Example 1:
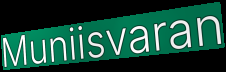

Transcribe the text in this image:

Muniisvaran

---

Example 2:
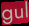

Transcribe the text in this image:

gul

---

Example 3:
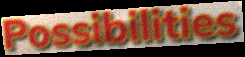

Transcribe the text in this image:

Possibilities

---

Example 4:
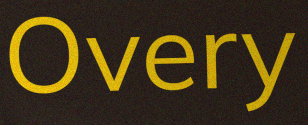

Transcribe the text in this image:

Overy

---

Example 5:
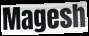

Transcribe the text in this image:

Magesh